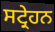
ਸਟ੍ਰੇਹਨ